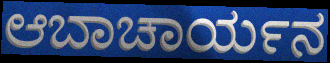
ಆಬಾಚಾರ್ಯನ